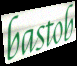
bastob